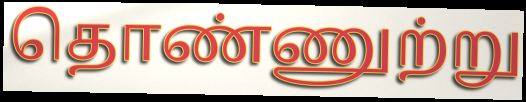
தொண்ணுற்று